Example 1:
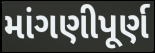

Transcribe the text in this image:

માંગણીપૂર્ણ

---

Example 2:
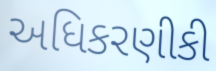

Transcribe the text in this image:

અધિકરણીકી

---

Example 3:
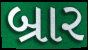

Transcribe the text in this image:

બ્રાર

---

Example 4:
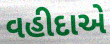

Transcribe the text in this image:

વહીદાએ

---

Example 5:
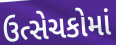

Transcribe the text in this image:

ઉત્સેચકોમાં